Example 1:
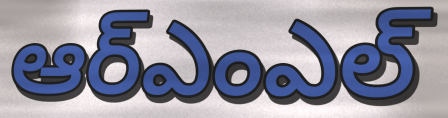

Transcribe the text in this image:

ఆర్ఎంఎల్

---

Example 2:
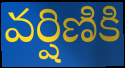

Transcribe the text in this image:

వర్షిణికి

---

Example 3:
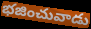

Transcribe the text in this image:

భజించువాడు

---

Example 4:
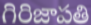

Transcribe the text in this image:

గిరిజాపతి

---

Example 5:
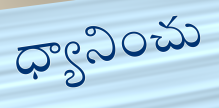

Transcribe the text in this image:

ధ్యానించు